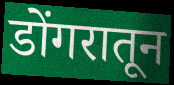
डोंगरातून